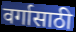
वर्गासाठी